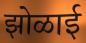
झोळाई